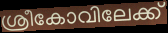
ശ്രീകോവിലേക്ക്